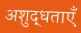
अशुद्धताएँ